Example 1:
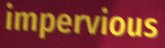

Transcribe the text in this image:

impervious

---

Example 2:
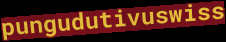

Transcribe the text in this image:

pungudutivuswiss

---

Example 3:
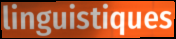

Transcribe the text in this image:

linguistiques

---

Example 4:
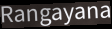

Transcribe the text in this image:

Rangayana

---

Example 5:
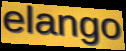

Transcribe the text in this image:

elango